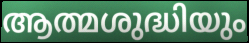
ആത്മശുദ്ധിയും